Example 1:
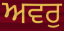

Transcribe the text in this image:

ਅਵਰੁ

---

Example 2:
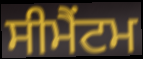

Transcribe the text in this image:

ਸੀਮੈਂਟਮ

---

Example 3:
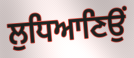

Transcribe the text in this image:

ਲੁਧਿਆਣਿਉਂ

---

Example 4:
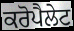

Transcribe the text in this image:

ਕਰੋਪੈਲੇਟ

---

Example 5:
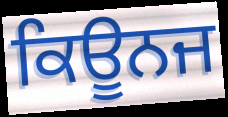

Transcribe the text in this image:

ਕਿਊਨਜ